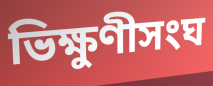
ভিক্ষুণীসংঘ